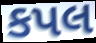
કપલ